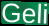
Geli